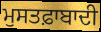
ਮੁਸਤਫ਼ਾਬਾਦੀ